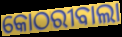
କୋଠରୀବାଲା